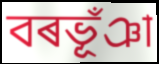
বৰভূঁঞা